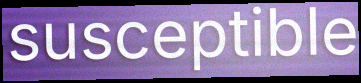
susceptible